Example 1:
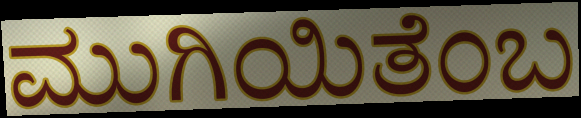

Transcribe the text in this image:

ಮುಗಿಯಿತೆಂಬ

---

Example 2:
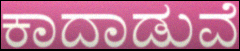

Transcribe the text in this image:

ಕಾದಾಡುವೆ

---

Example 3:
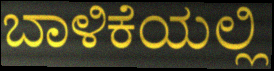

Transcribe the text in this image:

ಬಾಳಿಕೆಯಲ್ಲಿ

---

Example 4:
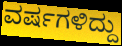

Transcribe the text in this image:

ವರ್ಷಗಳಿದ್ದು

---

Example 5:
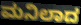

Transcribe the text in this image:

ಮನಿಲಾದ